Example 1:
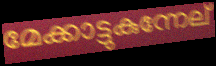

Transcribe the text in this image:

മേക്കാട്ടുകുന്നേല്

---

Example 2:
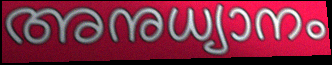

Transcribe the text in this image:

അനുധ്യാനം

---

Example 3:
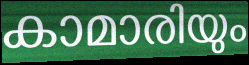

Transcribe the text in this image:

കാമാരിയും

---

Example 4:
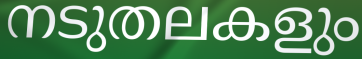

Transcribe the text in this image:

നടുതലകളും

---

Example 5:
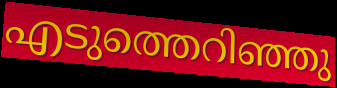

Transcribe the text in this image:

എടുത്തെറിഞ്ഞു